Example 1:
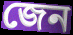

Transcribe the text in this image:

জেন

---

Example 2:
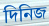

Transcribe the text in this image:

দিনিজ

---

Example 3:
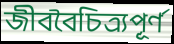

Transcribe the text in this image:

জীববৈচিত্র্যপূর্ণ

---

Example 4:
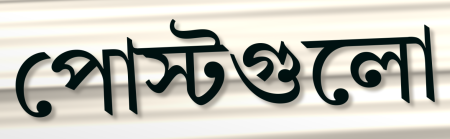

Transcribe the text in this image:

পোস্টগুলো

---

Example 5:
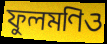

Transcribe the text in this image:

ফুলমণিও